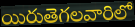
యిరుతెగలవారిలో